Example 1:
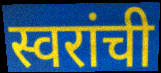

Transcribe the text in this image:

स्वरांची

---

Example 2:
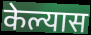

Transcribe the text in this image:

केल्यास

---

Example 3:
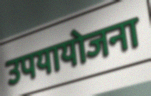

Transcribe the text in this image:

उपयायोजना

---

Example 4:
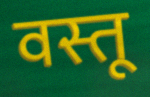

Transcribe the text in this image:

वस्तू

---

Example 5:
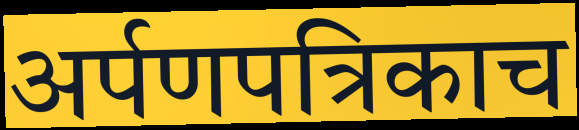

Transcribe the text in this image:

अर्पणपत्रिकाच